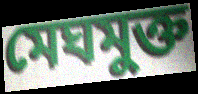
মেঘমুক্ত